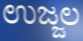
ಉಜ್ಜಲ